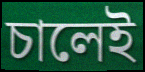
চালেই